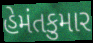
હેમંતકુમાર